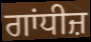
ਗਾਂਧੀਜ਼